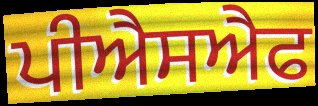
ਪੀਐਸਐਫ